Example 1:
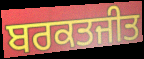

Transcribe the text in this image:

ਬਰਕਤਜੀਤ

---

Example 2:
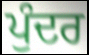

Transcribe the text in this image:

ਪੁੰਦਰ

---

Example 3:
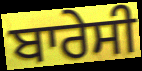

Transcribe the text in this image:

ਬਾਰੇਸੀ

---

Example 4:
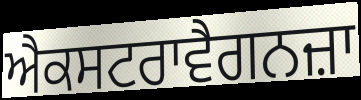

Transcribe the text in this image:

ਐਕਸਟਰਾਵੈਗਨਜ਼ਾ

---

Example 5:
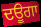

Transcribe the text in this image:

ਦਊਗਾ